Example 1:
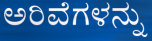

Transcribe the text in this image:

ಅರಿವೆಗಳನ್ನು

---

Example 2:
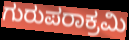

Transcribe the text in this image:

ಗುರುಪರಾಕ್ರಮಿ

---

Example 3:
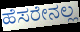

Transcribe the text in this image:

ಹೆಸರೇನಲ್ಲ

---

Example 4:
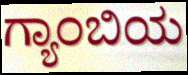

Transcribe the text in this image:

ಗ್ಯಾಂಬಿಯ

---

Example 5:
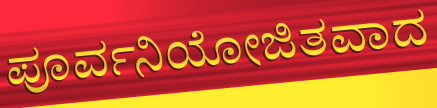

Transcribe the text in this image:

ಪೂರ್ವನಿಯೋಜಿತವಾದ